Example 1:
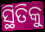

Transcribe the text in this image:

ସ୍ଥିତିକୁ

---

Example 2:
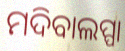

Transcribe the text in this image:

ମଦିବାଲପ୍ପା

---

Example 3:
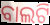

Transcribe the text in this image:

ବାଲଟି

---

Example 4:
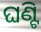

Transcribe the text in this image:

ଘଣ୍ଟି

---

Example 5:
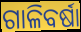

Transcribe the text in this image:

ଗାଳିବର୍ଷା